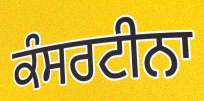
ਕੰਸਰਟੀਨਾ